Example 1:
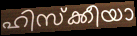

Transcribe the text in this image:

ഹിസ്ക്കീയാ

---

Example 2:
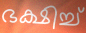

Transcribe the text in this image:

ഭക്ഷിച്ച്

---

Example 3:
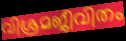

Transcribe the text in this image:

വിശ്രമജീവിതം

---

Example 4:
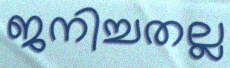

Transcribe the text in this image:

ജനിച്ചതല്ല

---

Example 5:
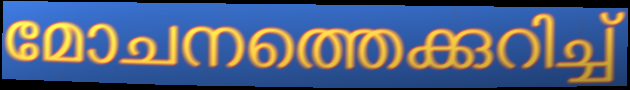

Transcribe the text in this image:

മോചനത്തെക്കുറിച്ച്